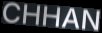
CHHAN